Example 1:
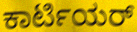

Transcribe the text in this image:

ಕಾರ್ಟಿಯರ್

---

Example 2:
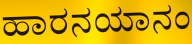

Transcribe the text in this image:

ಹಾರನಯಾನಂ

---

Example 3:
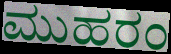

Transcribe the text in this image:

ಮುಹರಂ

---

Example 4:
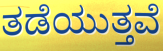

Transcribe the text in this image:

ತಡೆಯುತ್ತವೆ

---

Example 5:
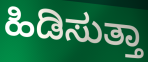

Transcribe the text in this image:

ಹಿಡಿಸುತ್ತಾ